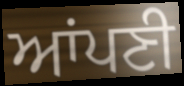
ਆਂਪਣੀ